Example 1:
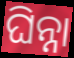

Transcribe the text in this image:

ଘିନ୍ନା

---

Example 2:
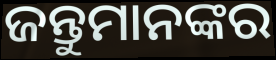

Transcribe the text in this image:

ଜନ୍ତୁମାନଙ୍କର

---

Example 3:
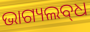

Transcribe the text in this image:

ଭାଗ୍ୟଲବ୍‌ଧ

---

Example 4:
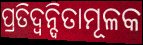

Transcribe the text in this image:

ପ୍ରତିଦ୍ୱନ୍ଦିତାମୂଳକ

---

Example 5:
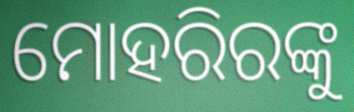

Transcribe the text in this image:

ମୋହରିରଙ୍କୁ